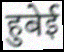
हुबेई